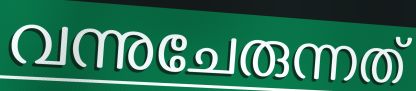
വന്നുചേരുന്നത്